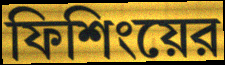
ফিশিংয়ের